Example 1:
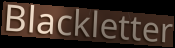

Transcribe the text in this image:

Blackletter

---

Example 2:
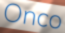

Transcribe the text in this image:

Onco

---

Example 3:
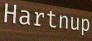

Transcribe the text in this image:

Hartnup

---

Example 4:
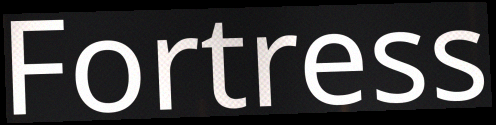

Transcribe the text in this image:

Fortress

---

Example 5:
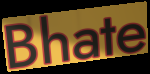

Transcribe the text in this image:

Bhate